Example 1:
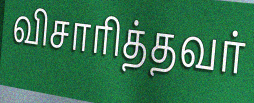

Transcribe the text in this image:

விசாரித்தவர்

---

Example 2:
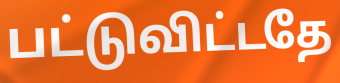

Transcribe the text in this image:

பட்டுவிட்டதே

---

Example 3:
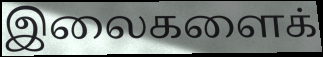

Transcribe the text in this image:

இலைகளைக்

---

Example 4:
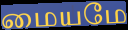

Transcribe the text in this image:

மையமே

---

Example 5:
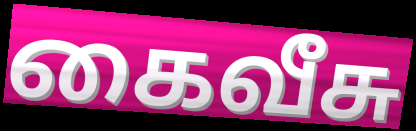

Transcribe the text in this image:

கைவீசு